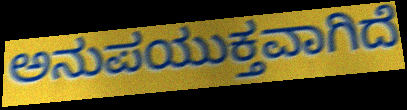
ಅನುಪಯುಕ್ತವಾಗಿದೆ